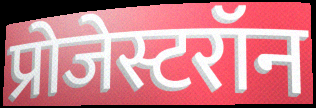
प्रोजेस्टरॉन